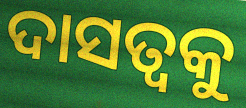
ଦାସତ୍ୱକୁ